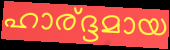
ഹാര്ദ്ദമായ